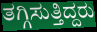
ತಗ್ಗಿಸುತ್ತಿದ್ದರು